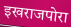
इखराजपोरा